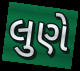
લુણે